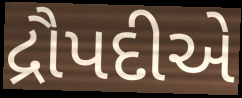
દ્રૌપદીએ